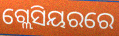
ଗ୍ଲେସିୟରରେ